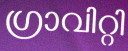
ഗ്രാവിറ്റി